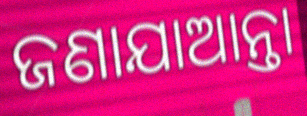
ଜଣାଯାଆନ୍ତା